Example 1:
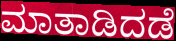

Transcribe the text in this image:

ಮಾತಾಡಿದಡೆ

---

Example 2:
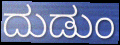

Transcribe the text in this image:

ದುಡುಂ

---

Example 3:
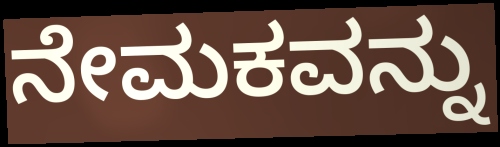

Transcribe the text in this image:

ನೇಮಕವನ್ನು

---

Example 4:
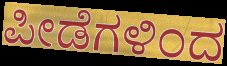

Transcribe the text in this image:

ಪೀಡೆಗಳಿಂದ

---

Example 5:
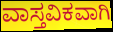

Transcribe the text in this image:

ವಾಸ್ತವಿಕವಾಗಿ